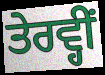
ਤੇਰਵ੍ਹੀਂ